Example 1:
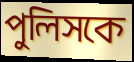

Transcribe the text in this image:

পুলিসকে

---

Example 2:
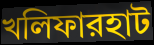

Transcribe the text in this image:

খলিফারহাট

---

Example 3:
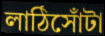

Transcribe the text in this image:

লাঠিসোঁটা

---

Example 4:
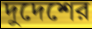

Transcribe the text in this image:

দুদেশের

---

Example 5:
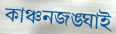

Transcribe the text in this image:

কাঞ্চনজঙ্ঘাই